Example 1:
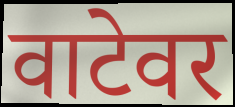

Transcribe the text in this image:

वाटेवर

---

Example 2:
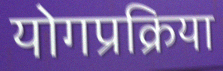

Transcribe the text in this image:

योगप्रक्रिया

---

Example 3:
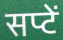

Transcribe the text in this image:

सप्टें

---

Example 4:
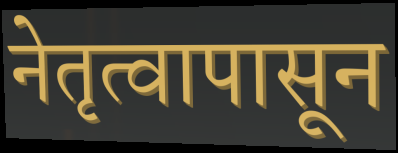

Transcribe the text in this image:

नेतृत्वापासून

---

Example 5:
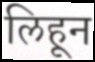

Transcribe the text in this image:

लिहून